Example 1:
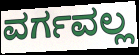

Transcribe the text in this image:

ವರ್ಗವಲ್ಲ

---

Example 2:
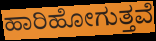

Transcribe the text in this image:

ಹಾರಿಹೋಗುತ್ತವೆ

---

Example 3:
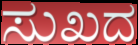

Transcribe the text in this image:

ಸುಖದ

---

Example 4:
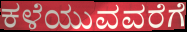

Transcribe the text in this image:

ಕಳೆಯುವವರೆಗೆ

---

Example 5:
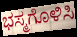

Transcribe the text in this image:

ಭಸ್ಮಗೊಳಿಸಿ